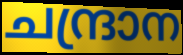
ചന്ദ്രാന